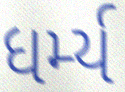
ધર્મ્ય